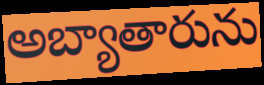
అబ్యాతారును